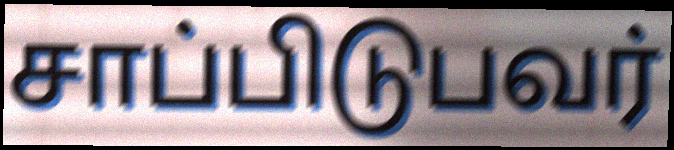
சாப்பிடுபவர்